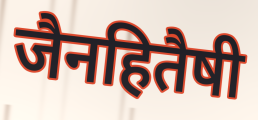
जैनहितैषी